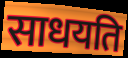
साधयति